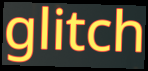
glitch